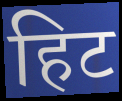
हिट